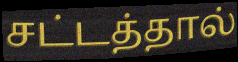
சட்டத்தால்